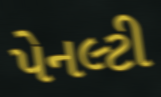
પેનલ્ટી